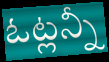
ఓట్లన్నీ